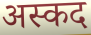
अस्कद